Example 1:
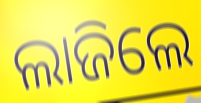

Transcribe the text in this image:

ଲାଜିଲେ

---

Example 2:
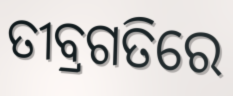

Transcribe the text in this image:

ତୀବ୍ରଗତିରେ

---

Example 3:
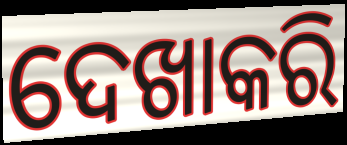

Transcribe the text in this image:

ଦେଖାକରି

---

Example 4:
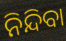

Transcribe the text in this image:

ନିନ୍ଦିବା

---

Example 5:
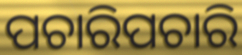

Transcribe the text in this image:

ପଚାରିପଚାରି